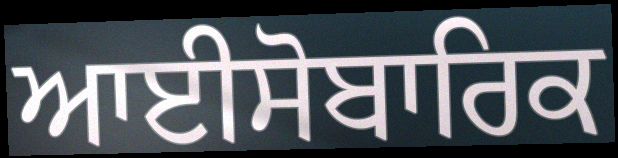
ਆਈਸੋਬਾਰਿਕ